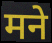
मने